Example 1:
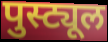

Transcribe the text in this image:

पुस्ट्यूल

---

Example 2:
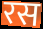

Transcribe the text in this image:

रस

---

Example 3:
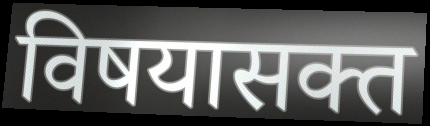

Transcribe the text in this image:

विषयासक्त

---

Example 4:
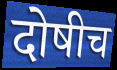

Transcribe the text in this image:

दोषीच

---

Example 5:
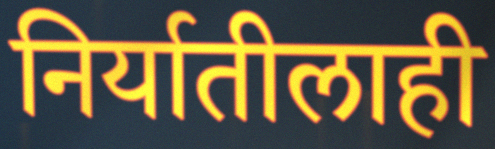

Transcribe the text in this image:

निर्यातीलाही